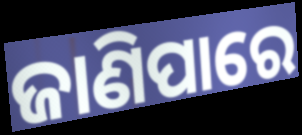
ଜାଣିପାରେ